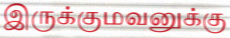
இருக்குமவனுக்கு